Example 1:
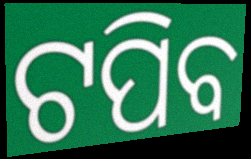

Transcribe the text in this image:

ଟପିବ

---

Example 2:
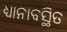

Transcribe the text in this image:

ଧ୍ୟାନାବସ୍ଥିତ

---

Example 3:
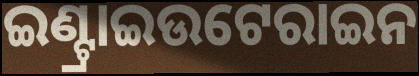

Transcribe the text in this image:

ଇଣ୍ଟ୍ରାଇଉଟେରାଇନ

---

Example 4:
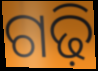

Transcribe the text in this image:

ଗଢ଼ି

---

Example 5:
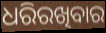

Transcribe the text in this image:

ଧରିରଖିବାର